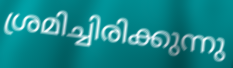
ശ്രമിച്ചിരിക്കുന്നു